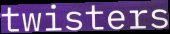
twisters